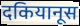
दकियानूस